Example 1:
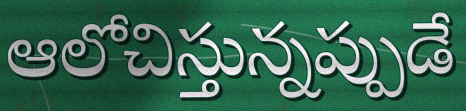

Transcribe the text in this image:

ఆలోచిస్తున్నప్పుడే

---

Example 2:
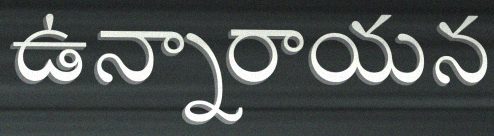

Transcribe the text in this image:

ఉన్నారాయన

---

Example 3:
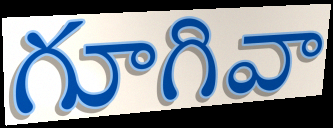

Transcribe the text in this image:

గూగివా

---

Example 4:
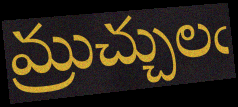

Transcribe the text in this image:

మ్రుచ్చులఁ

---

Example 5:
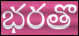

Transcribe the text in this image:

భరతొ